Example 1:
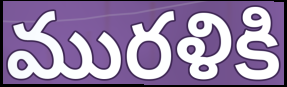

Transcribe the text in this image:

మురళికి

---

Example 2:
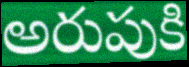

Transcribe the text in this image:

అరుపుకి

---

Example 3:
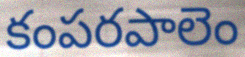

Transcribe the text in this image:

కంపరపాలెం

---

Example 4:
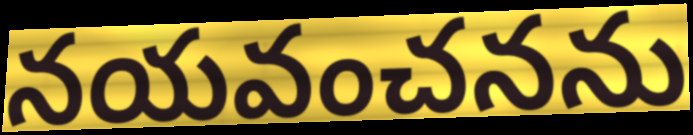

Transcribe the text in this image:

నయవంచనను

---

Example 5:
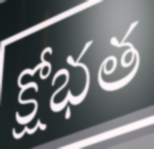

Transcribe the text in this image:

క్షోభత